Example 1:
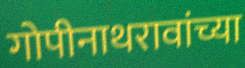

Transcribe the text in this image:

गोपीनाथरावांच्या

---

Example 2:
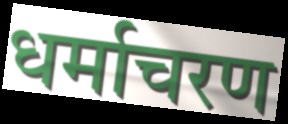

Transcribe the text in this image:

धर्माचरण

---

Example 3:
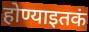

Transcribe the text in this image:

होण्याइतकं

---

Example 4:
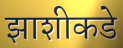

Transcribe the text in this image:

झाशीकडे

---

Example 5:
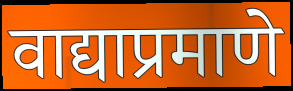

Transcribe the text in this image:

वाद्याप्रमाणे